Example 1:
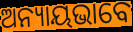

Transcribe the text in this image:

ଅନ୍ୟାୟଭାବେ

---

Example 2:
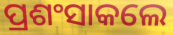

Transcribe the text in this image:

ପ୍ରଶଂସାକଲେ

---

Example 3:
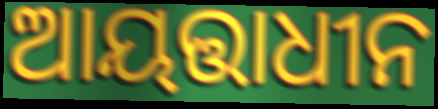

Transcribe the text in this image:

ଆୟତ୍ତାଧୀନ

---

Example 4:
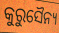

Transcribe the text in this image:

କୁରୁସୈନ୍ୟ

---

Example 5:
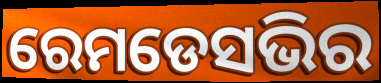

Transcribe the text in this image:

ରେମଡେସଭିର